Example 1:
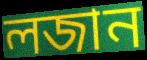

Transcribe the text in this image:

লজান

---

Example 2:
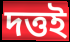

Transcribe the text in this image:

দত্তই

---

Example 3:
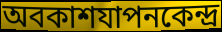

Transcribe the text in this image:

অবকাশযাপনকেন্দ্র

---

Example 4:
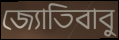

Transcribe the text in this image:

জ্যোতিবাবু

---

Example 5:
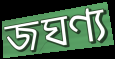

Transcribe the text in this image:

জঘণ্য